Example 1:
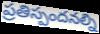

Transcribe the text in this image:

ప్రతిస్పందనల్ని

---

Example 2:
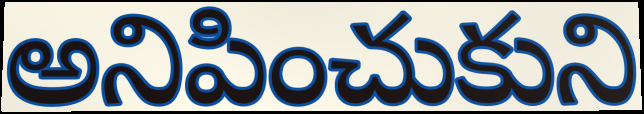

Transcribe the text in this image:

అనిపించుకుని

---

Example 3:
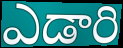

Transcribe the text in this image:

ఎడారి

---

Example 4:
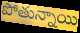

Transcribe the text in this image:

పోతున్నాయి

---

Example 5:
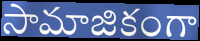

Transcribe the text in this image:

సామాజికంగా